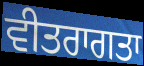
ਵੀਤਰਾਗਤਾ